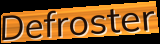
Defroster